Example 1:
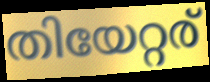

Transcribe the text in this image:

തിയേറ്റര്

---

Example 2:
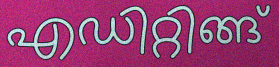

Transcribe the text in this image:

എഡിറ്റിങ്ങ്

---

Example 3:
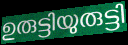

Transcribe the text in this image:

ഉരുട്ടിയുരുട്ടി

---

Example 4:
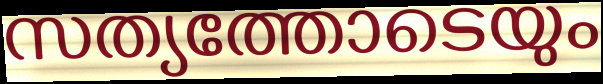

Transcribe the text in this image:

സത്യത്തോടെയും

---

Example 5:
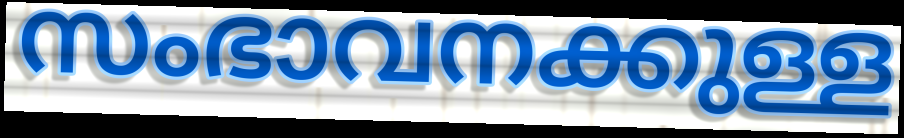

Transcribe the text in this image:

സംഭാവനക്കുള്ള